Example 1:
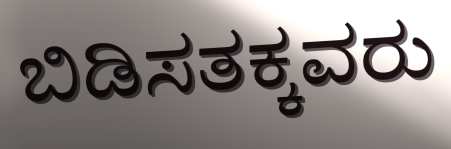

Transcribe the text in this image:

ಬಿಡಿಸತಕ್ಕವರು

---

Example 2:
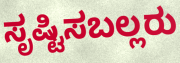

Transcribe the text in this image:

ಸೃಷ್ಟಿಸಬಲ್ಲರು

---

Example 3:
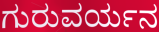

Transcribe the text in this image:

ಗುರುವರ್ಯನ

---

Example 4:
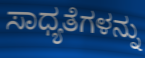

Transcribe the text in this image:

ಸಾಧ್ಯತೆಗಳನ್ನು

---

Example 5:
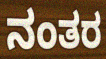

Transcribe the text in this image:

ನಂತರ